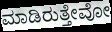
ಮಾಡಿರುತ್ತೇವೋ